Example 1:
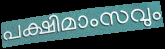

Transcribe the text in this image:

പക്ഷിമാംസവും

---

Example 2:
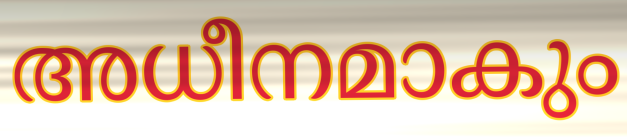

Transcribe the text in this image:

അധീനമാകും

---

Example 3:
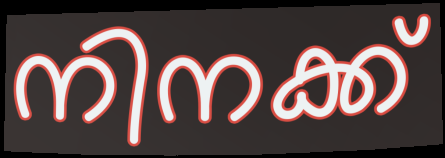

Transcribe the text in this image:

നിനക്ക്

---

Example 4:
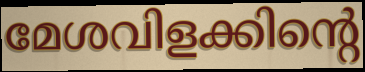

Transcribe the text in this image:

മേശവിളക്കിന്റെ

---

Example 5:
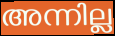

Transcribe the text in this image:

അന്നില്ല